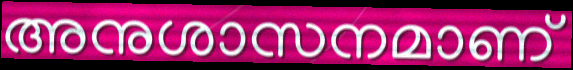
അനുശാസനമാണ്